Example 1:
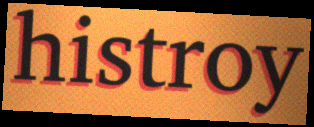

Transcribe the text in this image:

histroy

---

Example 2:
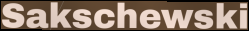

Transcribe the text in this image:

Sakschewski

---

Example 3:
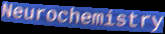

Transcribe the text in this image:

Neurochemistry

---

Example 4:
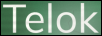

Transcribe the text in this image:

Telok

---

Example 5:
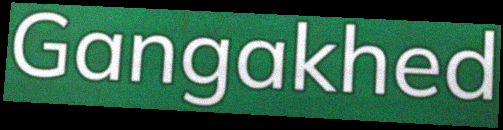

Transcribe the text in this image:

Gangakhed